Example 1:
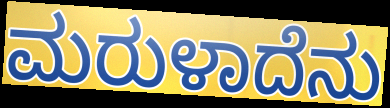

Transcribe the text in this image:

ಮರುಳಾದೆನು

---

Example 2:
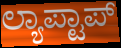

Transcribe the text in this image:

ಲ್ಯಾಪ್ಟಾಪ್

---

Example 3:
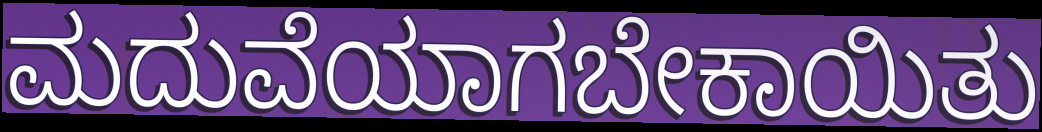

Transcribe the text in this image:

ಮದುವೆಯಾಗಬೇಕಾಯಿತು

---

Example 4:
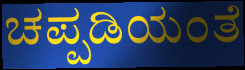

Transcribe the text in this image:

ಚಪ್ಪಡಿಯಂತೆ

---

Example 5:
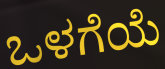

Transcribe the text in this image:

ಒಳಗೆಯೆ